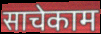
साचेकाम